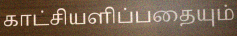
காட்சியளிப்பதையும்